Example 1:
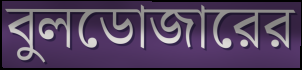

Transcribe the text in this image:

বুলডোজারের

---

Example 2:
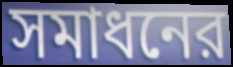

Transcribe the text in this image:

সমাধনের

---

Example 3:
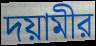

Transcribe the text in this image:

দয়ামীর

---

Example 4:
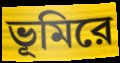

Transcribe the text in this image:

ভূমিরে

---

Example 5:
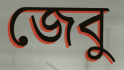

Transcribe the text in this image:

জেবু